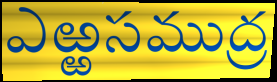
ఎఱ్ఱసముద్ర